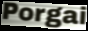
Porgai